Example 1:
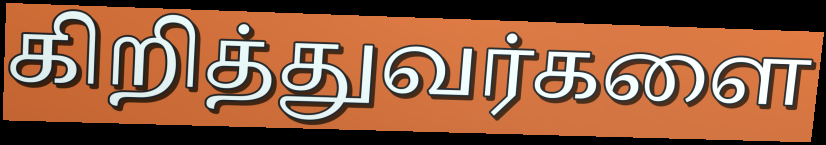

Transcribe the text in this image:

கிறித்துவர்களை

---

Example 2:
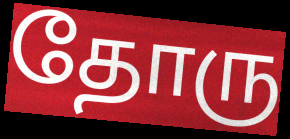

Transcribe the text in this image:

தோரு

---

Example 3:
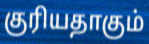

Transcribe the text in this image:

குரியதாகும்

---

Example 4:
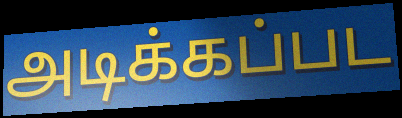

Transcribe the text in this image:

அடிக்கப்பட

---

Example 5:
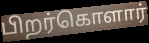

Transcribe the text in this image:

பிறர்கொளார்